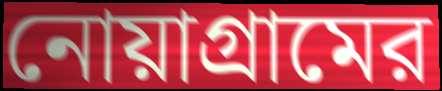
নোয়াগ্রামের